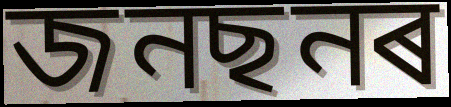
জনছনৰ